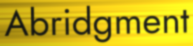
Abridgment